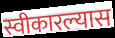
स्वीकारल्यास